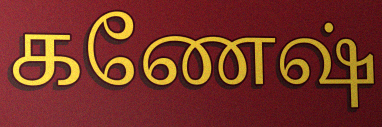
கணேஷ்